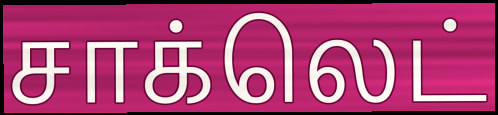
சாக்லெட்